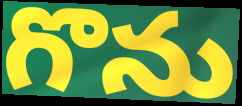
గొను